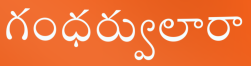
గంధర్వులారా